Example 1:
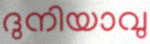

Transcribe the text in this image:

ദുനിയാവു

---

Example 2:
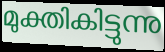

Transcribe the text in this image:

മുക്തികിട്ടുന്നു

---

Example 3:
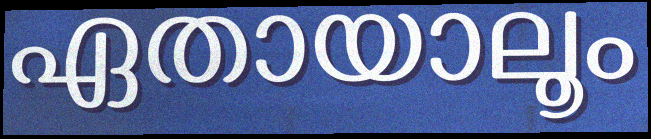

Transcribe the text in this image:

ഏതായാലൂം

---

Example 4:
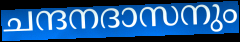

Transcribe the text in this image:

ചന്ദനദാസനും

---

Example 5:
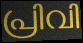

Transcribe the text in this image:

പ്രിവി